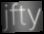
jfty